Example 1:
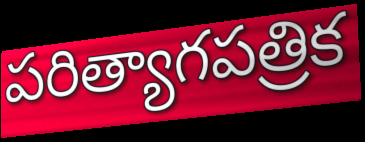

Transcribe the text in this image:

పరిత్యాగపత్రిక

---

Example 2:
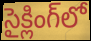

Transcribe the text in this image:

సైక్లింగ్‌లో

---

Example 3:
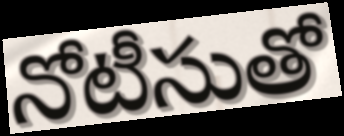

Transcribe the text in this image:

నోటీసుతో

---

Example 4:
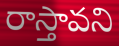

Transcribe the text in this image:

రాస్తావని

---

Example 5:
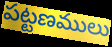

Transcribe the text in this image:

పట్టణములు